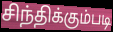
சிந்திக்கும்படி